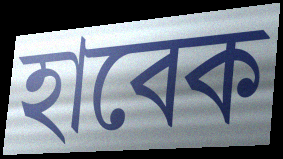
হাবেক